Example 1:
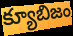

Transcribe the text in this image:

క్యూబిజం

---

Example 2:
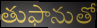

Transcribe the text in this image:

తుఫానుతో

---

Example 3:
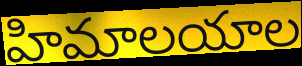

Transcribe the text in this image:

హిమాలయాల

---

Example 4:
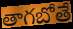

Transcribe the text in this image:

తాగబోతే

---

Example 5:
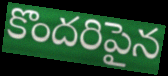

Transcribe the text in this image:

కొందరిపైన